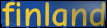
finland